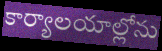
కార్యాలయాల్లోను